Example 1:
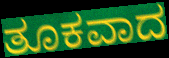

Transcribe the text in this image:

ತೂಕವಾದ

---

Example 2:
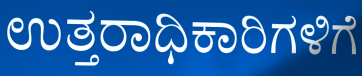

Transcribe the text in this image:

ಉತ್ತರಾಧಿಕಾರಿಗಳಿಗೆ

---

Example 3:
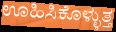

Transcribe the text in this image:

ಊಹಿಸಿಕೊಳ್ಳುತ್ತ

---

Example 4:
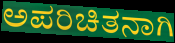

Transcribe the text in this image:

ಅಪರಿಚಿತನಾಗಿ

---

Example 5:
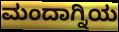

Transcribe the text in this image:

ಮಂದಾಗ್ನಿಯ